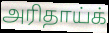
அரிதாய்க்